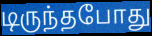
டிருந்தபோது